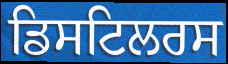
ਡਿਸਟਿਲਰਸ